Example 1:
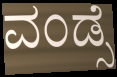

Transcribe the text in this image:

ವಂಡ್ಸೆ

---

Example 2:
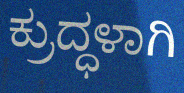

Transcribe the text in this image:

ಕ್ರುದ್ಧಳಾಗಿ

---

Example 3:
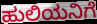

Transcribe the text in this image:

ಹುಲಿಯನಿಗೆ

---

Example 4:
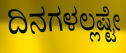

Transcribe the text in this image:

ದಿನಗಳಲ್ಲಷ್ಟೇ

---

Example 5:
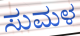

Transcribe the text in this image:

ಸುಮಳ